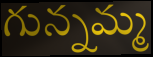
గున్నమ్మ